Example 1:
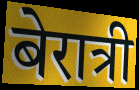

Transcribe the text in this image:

बेरात्री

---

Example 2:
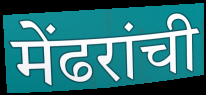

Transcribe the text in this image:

मेंढरांची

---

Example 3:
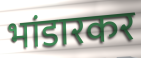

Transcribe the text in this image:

भांडारकर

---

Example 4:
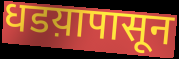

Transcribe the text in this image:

धडय़ापासून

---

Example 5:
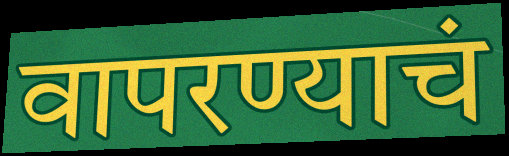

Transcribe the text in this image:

वापरण्याचं